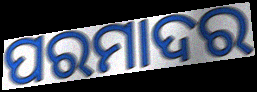
ପରମାଦର